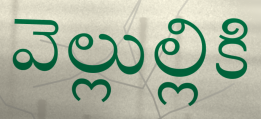
వెల్లుల్లికి